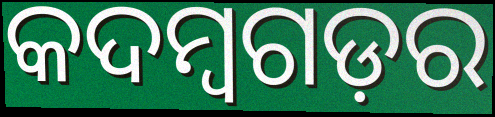
କଦମ୍ବଗଡ଼ର